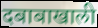
दबाबाखाली